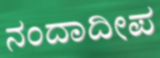
ನಂದಾದೀಪ